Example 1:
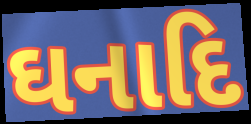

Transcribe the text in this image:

ઘનાદિ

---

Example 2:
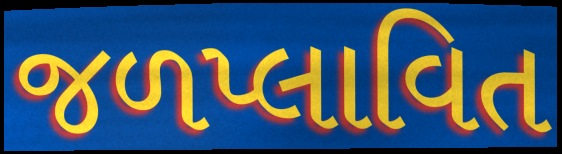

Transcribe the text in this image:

જળપ્લાવિત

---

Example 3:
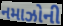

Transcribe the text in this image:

નમાઝોની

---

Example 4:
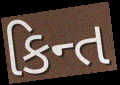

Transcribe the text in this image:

કિન્ત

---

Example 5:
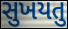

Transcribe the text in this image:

સુખયતુ